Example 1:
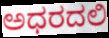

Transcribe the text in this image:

ಅಧರದಲಿ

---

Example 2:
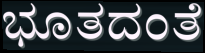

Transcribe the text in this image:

ಭೂತದಂತೆ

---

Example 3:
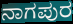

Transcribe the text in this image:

ನಾಗಪುರ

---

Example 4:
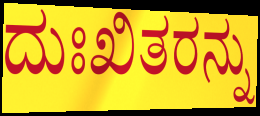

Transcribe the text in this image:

ದುಃಖಿತರನ್ನು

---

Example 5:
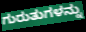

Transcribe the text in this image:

ಗುರುತುಗಳನ್ನು